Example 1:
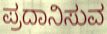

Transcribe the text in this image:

ಪ್ರದಾನಿಸುವ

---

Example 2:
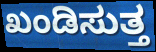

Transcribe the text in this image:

ಖಂಡಿಸುತ್ತ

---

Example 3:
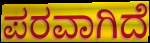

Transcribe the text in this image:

ಪರವಾಗಿದೆ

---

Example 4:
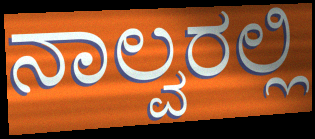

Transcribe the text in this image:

ನಾಲ್ವರಲ್ಲಿ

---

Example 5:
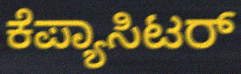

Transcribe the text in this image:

ಕೆಪ್ಯಾಸಿಟರ್